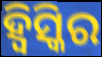
ହ୍ୱିସ୍କିର